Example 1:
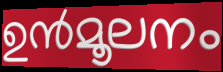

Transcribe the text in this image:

ഉൻമൂലനം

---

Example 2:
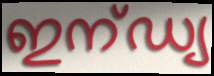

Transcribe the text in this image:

ഇന്ഡ്യ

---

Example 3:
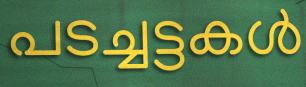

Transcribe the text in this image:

പടച്ചട്ടകൾ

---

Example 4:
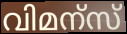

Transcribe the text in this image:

വിമന്സ്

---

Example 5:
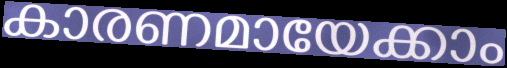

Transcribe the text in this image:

കാരണമായേക്കാം